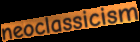
neoclassicism